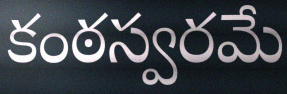
కంఠస్వరమే